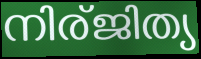
നിര്ജിത്യ